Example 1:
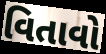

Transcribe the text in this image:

વિતાવો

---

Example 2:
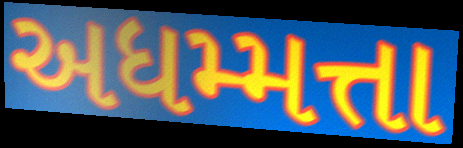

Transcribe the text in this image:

અધમ્મત્તા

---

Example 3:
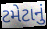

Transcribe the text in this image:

ટમેટાનું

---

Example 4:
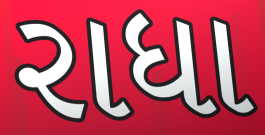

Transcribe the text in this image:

રાધા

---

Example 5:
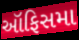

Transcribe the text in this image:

ઑફિસમા